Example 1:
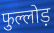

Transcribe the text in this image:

फुल्लोड़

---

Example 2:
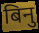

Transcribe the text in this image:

बिनु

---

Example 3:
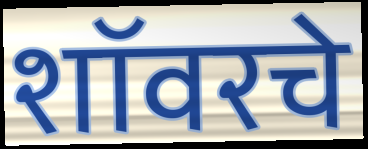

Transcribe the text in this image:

शॉवरचे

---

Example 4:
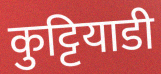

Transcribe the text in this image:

कुट्टियाडी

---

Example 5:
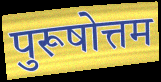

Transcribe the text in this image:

पुरूषोत्तम